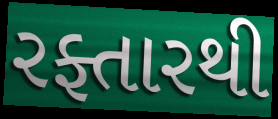
રફ્તારથી